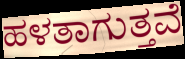
ಹಳತಾಗುತ್ತವೆ